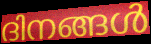
ദിനങ്ങൾ